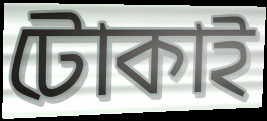
টোকাই